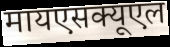
मायएसक्यूएल